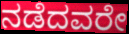
ನಡೆದವರೇ